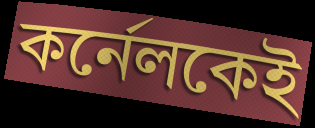
কর্নেলকেই